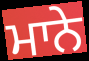
ਮਾਨੇ